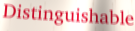
Distinguishable